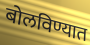
बोलविण्यात